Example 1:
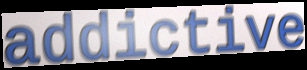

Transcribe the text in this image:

addictive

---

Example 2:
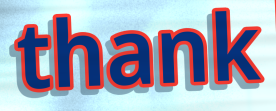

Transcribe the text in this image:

thank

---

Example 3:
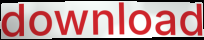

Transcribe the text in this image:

download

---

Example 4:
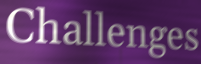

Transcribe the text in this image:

Challenges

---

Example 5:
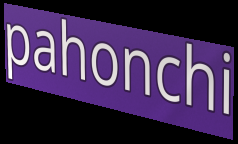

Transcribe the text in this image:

pahonchi